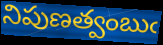
నిపుణత్వంబుఁ